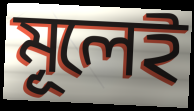
মূলেই